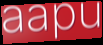
aapu